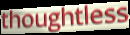
thoughtless